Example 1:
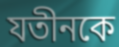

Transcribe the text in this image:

যতীনকে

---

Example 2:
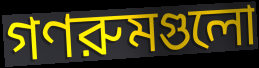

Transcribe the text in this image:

গণরুমগুলো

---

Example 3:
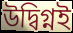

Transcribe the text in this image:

উদ্বিগ্নই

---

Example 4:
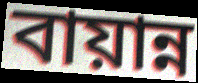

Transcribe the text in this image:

বায়ান্ন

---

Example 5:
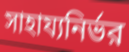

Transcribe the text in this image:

সাহায্যনির্ভর